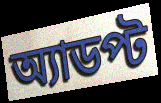
অ্যাডপ্ট